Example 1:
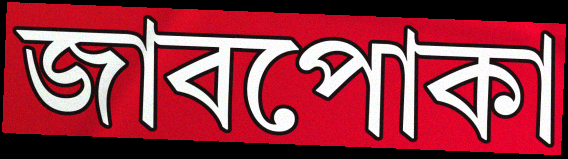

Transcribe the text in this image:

জাবপোকা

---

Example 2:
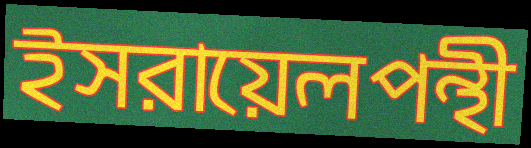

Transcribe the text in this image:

ইসরায়েলপন্থী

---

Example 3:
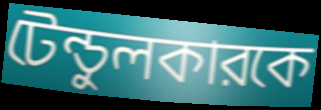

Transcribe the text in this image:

টেন্ডুলকারকে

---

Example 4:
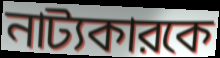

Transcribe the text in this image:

নাট্যকারকে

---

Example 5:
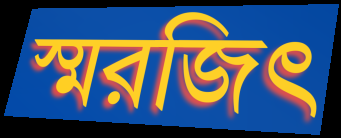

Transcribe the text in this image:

স্মরজিৎ